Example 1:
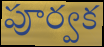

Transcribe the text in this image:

పూర్వక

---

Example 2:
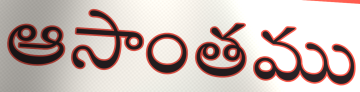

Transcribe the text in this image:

ఆసాంతము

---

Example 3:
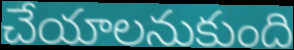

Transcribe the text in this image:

చేయాలనుకుంది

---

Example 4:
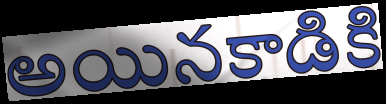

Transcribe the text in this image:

అయినకాడికి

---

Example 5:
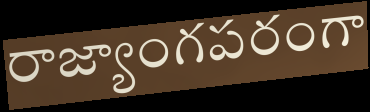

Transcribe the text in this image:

రాజ్యాంగపరంగా